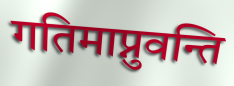
गतिमाप्नुवन्ति